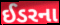
ઈડરના